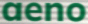
aeno